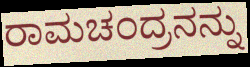
ರಾಮಚಂದ್ರನನ್ನು